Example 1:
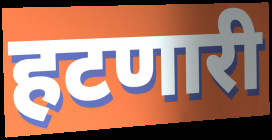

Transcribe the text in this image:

हटणारी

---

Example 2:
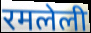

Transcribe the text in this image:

रमलेली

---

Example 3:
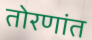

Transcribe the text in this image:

तोरणांत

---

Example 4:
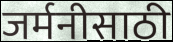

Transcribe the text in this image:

जर्मनीसाठी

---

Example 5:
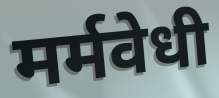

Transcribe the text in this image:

मर्मवेधी